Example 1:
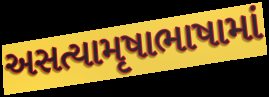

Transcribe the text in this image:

અસત્યામૃષાભાષામાં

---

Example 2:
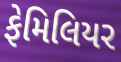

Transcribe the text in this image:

ફેમિલિયર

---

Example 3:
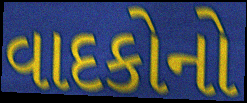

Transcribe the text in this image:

વાદકોનો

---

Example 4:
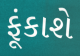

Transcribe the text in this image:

ફૂંકાશે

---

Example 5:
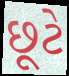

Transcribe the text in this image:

છૂટે